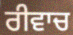
ਰੀਵਾਚ